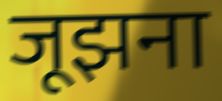
जूझना